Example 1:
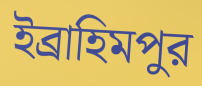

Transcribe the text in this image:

ইব্রাহিমপুর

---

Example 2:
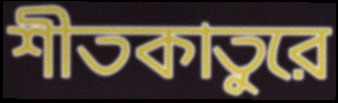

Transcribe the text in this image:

শীতকাতুরে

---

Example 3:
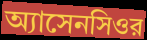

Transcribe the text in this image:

অ্যাসেনসিওর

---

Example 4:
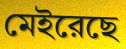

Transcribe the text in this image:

মেইরেছে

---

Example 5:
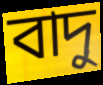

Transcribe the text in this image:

বাদু